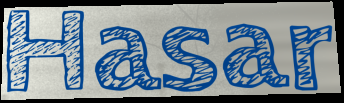
Hasar